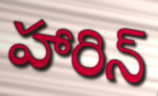
హారిన్